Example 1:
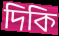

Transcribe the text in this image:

দিকি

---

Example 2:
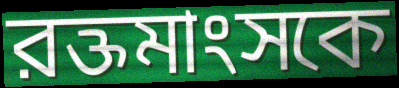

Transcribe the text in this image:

রক্তমাংসকে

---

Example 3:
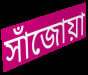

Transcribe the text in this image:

সাঁজোয়া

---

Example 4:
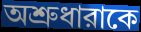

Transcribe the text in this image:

অশ্রুধারাকে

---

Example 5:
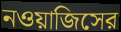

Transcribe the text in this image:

নওয়াজিসের